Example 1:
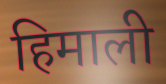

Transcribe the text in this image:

हिमाली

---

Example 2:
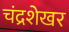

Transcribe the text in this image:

चंद्रशेखर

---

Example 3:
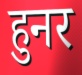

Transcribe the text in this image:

हुनर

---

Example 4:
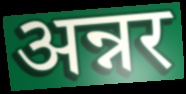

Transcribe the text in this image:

अन्नर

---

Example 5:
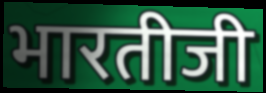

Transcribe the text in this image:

भारतीजी